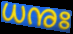
ധനുഃ